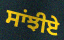
ਸਾਂਝੀਏ